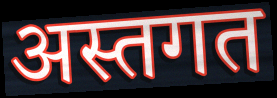
अस्तगत